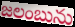
జలంబును